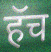
हॅच